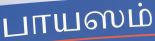
பாயஸம்